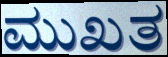
ಮುಖತ